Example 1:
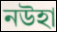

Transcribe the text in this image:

নউহা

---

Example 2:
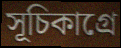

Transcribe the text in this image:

সূচিকাগ্রে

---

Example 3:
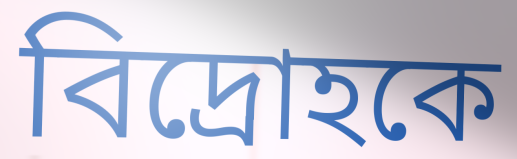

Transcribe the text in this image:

বিদ্রোহকে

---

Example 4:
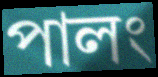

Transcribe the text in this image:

পালং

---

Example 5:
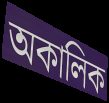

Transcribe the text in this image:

অকালিক